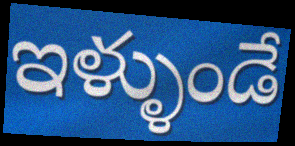
ఇళ్ళుండే